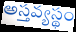
అస్తవ్యస్థం